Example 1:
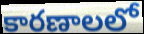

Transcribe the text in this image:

కారణాలలో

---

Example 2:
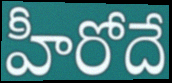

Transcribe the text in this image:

హీరోదే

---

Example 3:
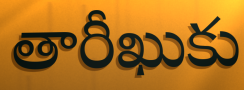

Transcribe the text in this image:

తారీఖుకు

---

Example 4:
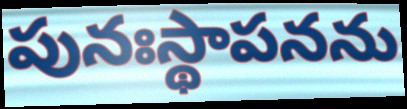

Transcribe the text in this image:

పునఃస్థాపనను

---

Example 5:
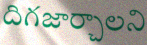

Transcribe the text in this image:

దిగజార్చాలని